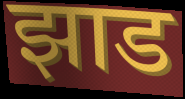
झाड